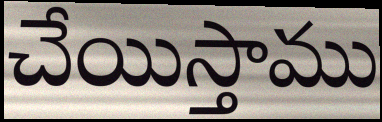
చేయిస్తాము